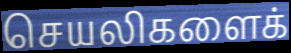
செயலிகளைக்